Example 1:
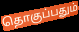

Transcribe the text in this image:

தொகுப்பதும்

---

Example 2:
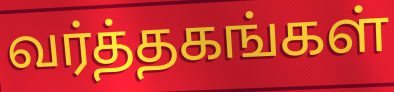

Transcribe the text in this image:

வர்த்தகங்கள்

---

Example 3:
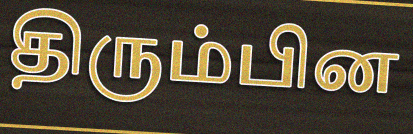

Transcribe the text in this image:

திரும்பின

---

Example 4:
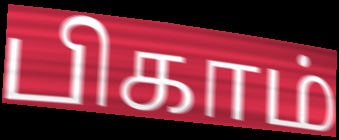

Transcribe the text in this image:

பிகாம்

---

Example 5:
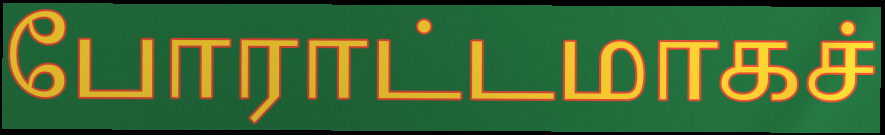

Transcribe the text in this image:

போராட்டமாகச்